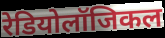
रेडियोलॉजिकल